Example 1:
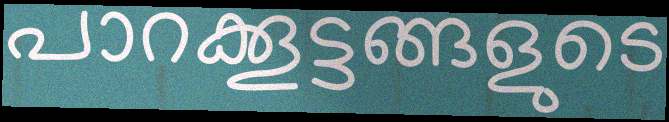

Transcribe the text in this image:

പാറക്കൂട്ടങ്ങളുടെ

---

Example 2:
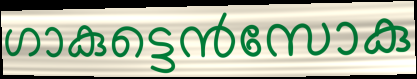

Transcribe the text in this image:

ഗാകുട്ടെൻസോകു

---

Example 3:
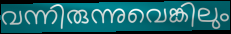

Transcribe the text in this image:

വന്നിരുന്നുവെങ്കിലും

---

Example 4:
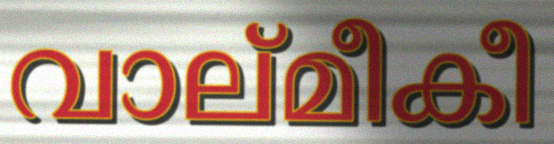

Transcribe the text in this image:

വാല്മീകീ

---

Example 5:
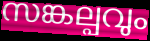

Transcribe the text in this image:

സങ്കല്പവും